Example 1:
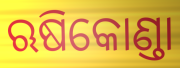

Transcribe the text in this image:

ଋଷିକୋଣ୍ଡା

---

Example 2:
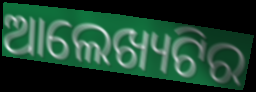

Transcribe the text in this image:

ଆଲେଖ୍ୟଟିର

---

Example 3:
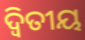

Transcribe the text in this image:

ଦ୍ୱିତୀୟ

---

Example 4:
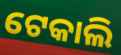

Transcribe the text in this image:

ଟେକାଲି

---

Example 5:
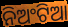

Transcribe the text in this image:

ନିଅଂଟିଆ